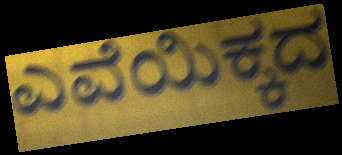
ಎವೆಯಿಕ್ಕದ